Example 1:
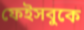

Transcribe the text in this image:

ফেইসবুকে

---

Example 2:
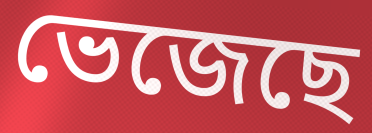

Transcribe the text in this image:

ভেজেছে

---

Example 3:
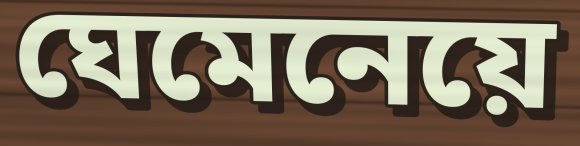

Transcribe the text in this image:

ঘেমেনেয়ে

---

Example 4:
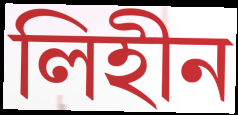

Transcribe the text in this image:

লিহীন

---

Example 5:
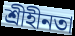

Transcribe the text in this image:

শ্রীহীনতা